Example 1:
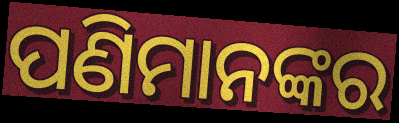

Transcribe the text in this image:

ପଣିମାନଙ୍କର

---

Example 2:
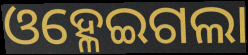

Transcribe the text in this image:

ଓହ୍ଳେଇଗଲା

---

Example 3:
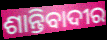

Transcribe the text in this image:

ଶାନ୍ତିବାଦୀର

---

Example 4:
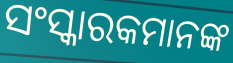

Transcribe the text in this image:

ସଂସ୍କାରକମାନଙ୍କ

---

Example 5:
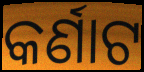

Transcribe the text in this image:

କର୍ଣାଟ